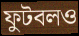
ফুটবলও